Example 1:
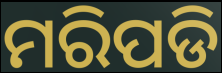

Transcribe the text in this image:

ମରିପଡି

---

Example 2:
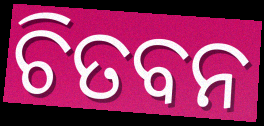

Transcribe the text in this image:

ଚିତବନ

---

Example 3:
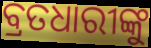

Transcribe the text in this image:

ବ୍ରତଧାରୀଙ୍କୁ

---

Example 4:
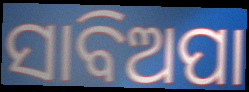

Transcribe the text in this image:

ସାବିଅପା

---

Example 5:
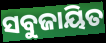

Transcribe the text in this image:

ସବୁଜାୟିତ